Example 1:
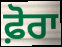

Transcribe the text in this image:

ਫ਼ੋਰਾ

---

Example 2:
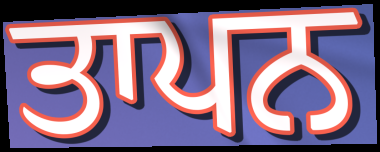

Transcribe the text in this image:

ਤਾਪਨ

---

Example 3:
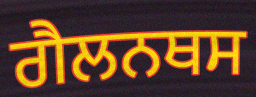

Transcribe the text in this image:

ਗੈਲਨਥਸ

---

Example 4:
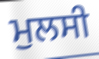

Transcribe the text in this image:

ਮੁਲਸੀ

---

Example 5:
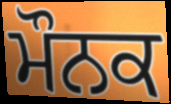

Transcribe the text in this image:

ਮੌਨਕ